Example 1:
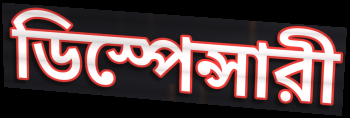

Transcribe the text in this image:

ডিস্পেন্সারী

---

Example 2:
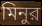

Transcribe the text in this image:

মিনুর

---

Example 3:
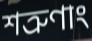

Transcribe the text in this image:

শত্রুণাং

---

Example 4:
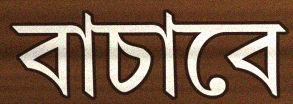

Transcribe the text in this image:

বাচাবে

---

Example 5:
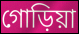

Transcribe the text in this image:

গোড়িয়া